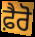
ਫ਼ੈਰੋ